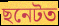
ছনেটত